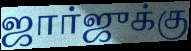
ஜார்ஜுக்கு